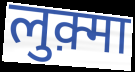
लुक़्मा